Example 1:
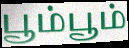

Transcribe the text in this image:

பூம்பூம்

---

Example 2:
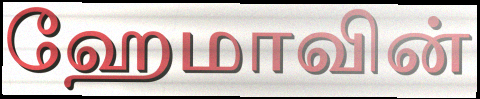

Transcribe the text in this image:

ஹேமாவின்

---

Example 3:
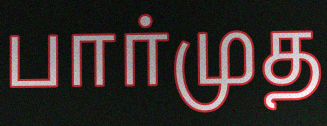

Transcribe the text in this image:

பார்முத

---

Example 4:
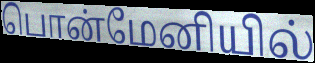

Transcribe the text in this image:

பொன்மேனியில்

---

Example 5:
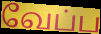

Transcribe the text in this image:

வேப்ப